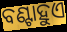
ବଣ୍ଟାହୁଏ